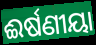
ଈର୍ଷଣୀୟା